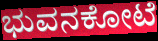
ಭುವನಕೋಟೆ